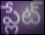
ప్లేట్